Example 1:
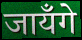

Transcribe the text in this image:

जायँगे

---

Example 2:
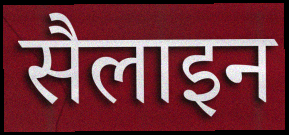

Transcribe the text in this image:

सैलाइन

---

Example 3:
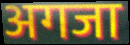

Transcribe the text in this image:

अगजा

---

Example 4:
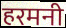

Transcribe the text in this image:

हरमनी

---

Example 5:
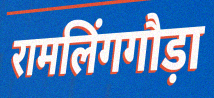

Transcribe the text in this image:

रामलिंगगौड़ा